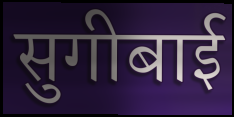
सुगीबाई